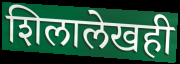
शिलालेखही